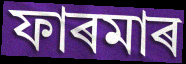
ফাৰমাৰ